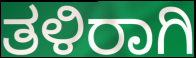
ತಳಿರಾಗಿ